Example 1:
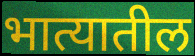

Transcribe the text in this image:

भात्यातील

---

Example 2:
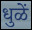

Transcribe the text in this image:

धुळें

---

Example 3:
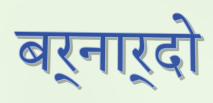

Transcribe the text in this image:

बर्नार्दो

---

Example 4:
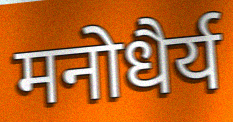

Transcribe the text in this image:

मनोधैर्य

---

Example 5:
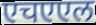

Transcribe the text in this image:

एचएएल